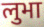
लुभा